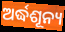
ଅର୍ଦ୍ଧଶୂନ୍ୟ